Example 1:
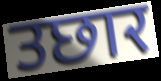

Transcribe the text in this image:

उछार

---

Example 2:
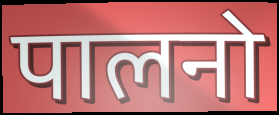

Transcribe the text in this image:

पालनो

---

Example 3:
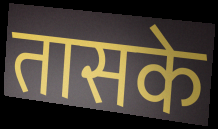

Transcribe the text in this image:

तासके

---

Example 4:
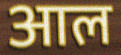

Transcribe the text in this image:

आल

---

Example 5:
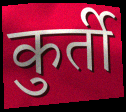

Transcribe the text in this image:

कुर्ती